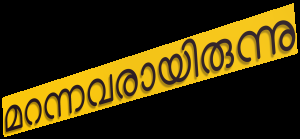
മറന്നവരായിരുന്നു